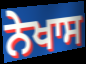
ਨੇਖਾਸ